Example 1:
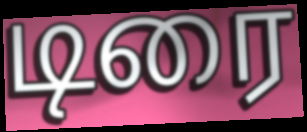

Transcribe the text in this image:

டிரை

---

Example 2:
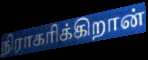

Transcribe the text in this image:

நிராகரிக்கிறான்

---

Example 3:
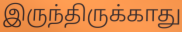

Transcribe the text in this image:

இருந்திருக்காது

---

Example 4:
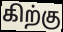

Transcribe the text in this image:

கிற்கு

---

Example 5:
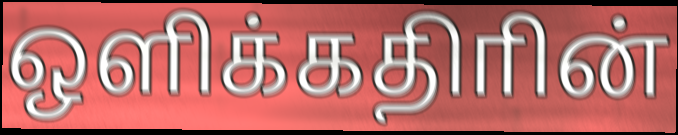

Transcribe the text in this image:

ஒளிக்கதிரின்